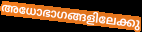
അധോഭാഗങ്ങളിലേക്കു